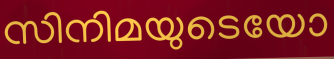
സിനിമയുടെയോ